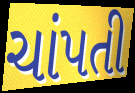
ચાંપતી